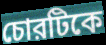
চোরটিকে